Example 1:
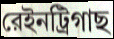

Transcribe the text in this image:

রেইনট্রিগাছ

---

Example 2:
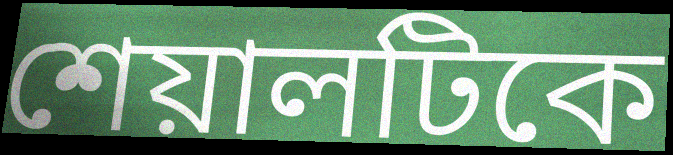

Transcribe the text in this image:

শেয়ালটিকে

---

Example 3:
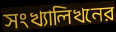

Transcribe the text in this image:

সংখ্যালিখনের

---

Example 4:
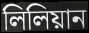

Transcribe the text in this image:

লিলিয়ান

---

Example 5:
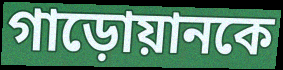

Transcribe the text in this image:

গাড়োয়ানকে